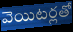
వెయిటర్లతో